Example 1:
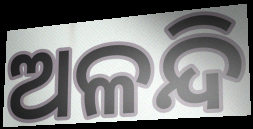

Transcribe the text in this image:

ଅଳନ୍ଦି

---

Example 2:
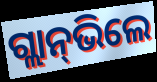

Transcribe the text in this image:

ଗ୍ଲାନ୍‌ଭିଲେ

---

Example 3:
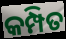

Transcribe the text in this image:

କମ୍ପିତ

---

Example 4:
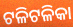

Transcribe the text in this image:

ଟଳିଟଳିକା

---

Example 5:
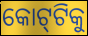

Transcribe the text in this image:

କୋଟ୍‌ଟିକୁ